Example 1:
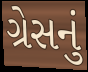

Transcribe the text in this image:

ગ્રેસનું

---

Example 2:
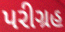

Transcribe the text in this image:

પરીગ્રહ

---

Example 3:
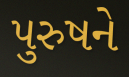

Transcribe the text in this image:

પુરુષને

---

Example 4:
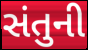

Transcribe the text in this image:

સંતુની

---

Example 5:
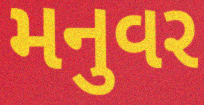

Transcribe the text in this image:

મનુવર